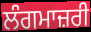
ਲੰਗਮਾਜ਼ਰੀ